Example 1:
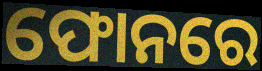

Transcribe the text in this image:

ଫୋନରେ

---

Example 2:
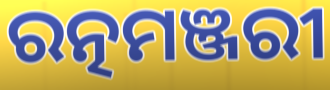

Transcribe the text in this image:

ରତ୍ନମଞ୍ଜରୀ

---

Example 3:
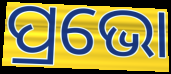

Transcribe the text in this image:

ପ୍ରଭୋ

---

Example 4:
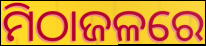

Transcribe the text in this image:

ମିଠାଜଳରେ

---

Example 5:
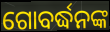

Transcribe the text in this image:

ଗୋବର୍ଦ୍ଧନଙ୍କ